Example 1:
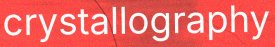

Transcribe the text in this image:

crystallography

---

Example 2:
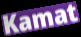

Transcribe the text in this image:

Kamat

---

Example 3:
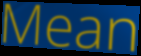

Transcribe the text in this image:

Mean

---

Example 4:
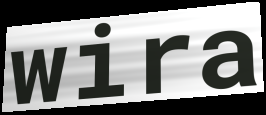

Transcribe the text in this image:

wira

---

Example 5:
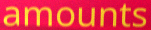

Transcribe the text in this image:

amounts